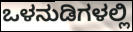
ಒಳನುಡಿಗಳಲ್ಲಿ